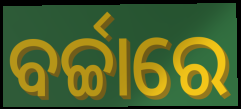
ବର୍ଚ୍ଚାରେ